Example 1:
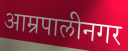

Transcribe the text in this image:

आम्रपालीनगर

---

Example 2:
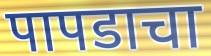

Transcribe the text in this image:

पापडाचा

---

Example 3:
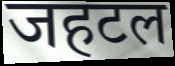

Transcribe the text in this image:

जहटल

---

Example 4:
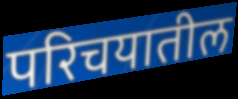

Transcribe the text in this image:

परिचयातील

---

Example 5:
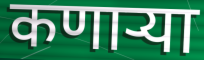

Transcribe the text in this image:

कणाऱ्या